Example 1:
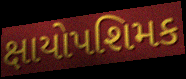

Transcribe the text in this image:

ક્ષાયોપશિમક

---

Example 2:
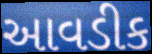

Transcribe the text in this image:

આવડીક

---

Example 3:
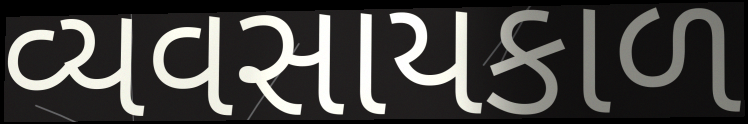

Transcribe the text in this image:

વ્યવસાયકાળ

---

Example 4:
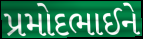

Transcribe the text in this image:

પ્રમોદભાઈને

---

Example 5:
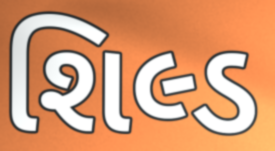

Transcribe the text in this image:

શિલ્ડ